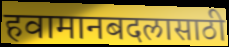
हवामानबदलासाठी